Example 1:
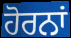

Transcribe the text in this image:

ਹੋਰਨਾਂ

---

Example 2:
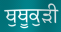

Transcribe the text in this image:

ਥੁਥੂਕੁੜੀ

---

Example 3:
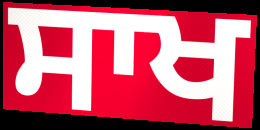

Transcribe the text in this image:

ਸਾਖ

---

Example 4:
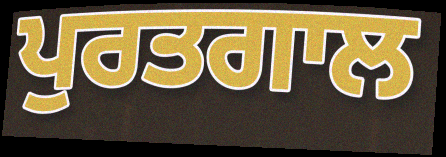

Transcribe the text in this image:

ਪੁਰਤਗਾਲ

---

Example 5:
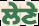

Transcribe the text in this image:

ਲੇਣੇ